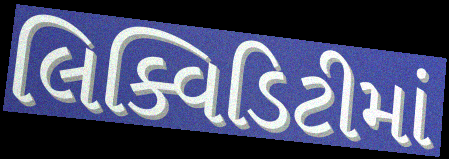
લિક્વિડિટીમાં